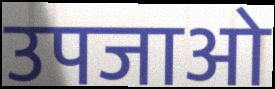
उपजाओ